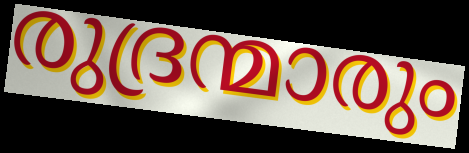
രുദ്രന്മാരും